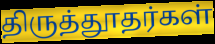
திருத்தூதர்கள்